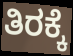
ತಿರಕ್ಕೆ